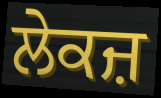
ਲੇਕਜ਼